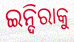
ଇନ୍ଦିରାକୁ